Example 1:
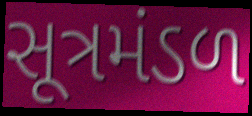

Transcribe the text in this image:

સૂત્રમંડળ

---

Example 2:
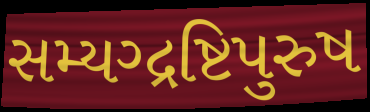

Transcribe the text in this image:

સમ્યગ્દ્રષ્ટિપુરુષ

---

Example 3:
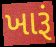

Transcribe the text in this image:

ખારૂં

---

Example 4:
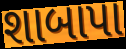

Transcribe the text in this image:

શાબાપા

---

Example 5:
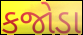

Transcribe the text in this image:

કજોડા